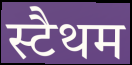
स्टैथम